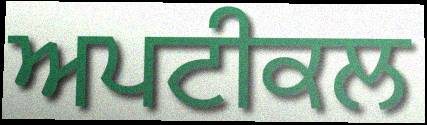
ਅਪਟੀਕਲ